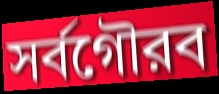
সর্বগৌরব